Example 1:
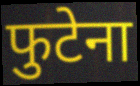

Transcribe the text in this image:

फुटेना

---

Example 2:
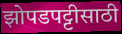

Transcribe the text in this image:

झोपडपट्टीसाठी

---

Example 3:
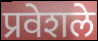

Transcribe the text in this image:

प्रवेशले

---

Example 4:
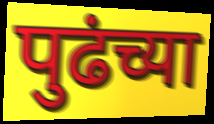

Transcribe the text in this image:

पुढंच्या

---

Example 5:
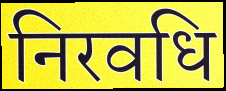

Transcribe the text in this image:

निरवधि